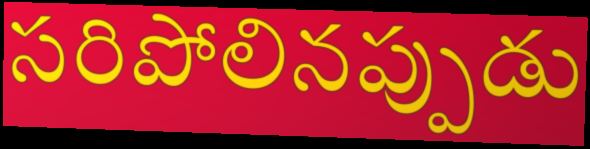
సరిపోలినప్పుడు